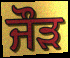
ਜੌੜ